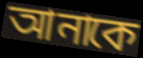
আনাকে